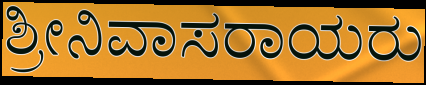
ಶ್ರೀನಿವಾಸರಾಯರು